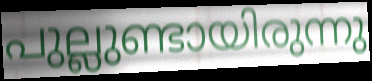
പുല്ലുണ്ടായിരുന്നു